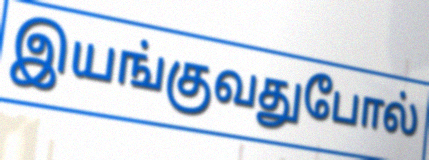
இயங்குவதுபோல்